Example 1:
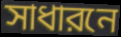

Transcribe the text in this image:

সাধারনে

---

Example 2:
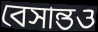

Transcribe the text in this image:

বেসান্তও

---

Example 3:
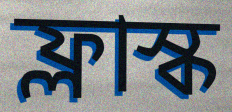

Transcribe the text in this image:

ফ্লাস্ক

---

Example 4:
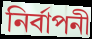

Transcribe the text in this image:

নির্বাপনী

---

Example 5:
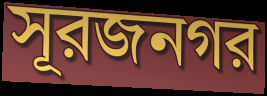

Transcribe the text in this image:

সূরজনগর